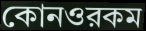
কোনওরকম